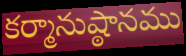
కర్మానుష్ఠానము